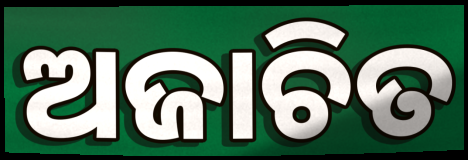
ଅଜାଚିତ